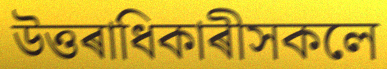
উত্তৰাধিকাৰীসকলে